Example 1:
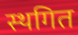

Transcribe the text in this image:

स्थगित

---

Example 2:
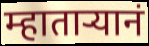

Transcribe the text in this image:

म्हातार्‍यानं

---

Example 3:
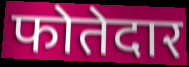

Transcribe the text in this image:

फोतेदार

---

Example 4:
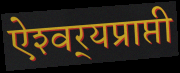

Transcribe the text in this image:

ऐश्वर्यप्राप्ती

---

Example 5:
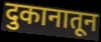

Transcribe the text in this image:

दुकानातून